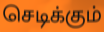
செடிக்கும்